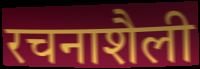
रचनाशैली